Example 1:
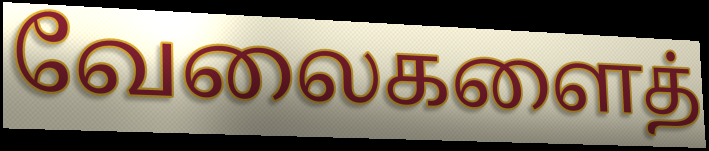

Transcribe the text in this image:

வேலைகளைத்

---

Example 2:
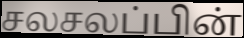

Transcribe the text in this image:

சலசலப்பின்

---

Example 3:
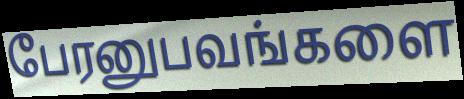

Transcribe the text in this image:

பேரனுபவங்களை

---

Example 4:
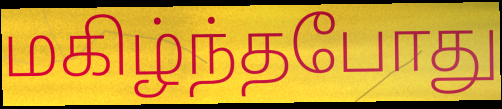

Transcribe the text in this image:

மகிழ்ந்தபோது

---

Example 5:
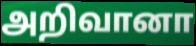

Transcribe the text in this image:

அறிவானா